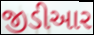
જીડીઆર